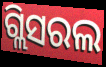
ଗ୍ଲିସରଲ